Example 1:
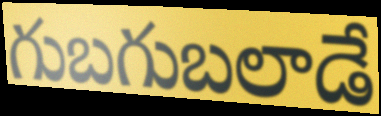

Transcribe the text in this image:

గుబగుబలాడే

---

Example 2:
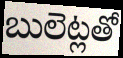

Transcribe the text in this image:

బులెట్లతో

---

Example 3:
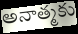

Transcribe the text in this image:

అనాత్మకు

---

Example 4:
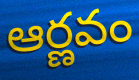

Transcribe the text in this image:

ఆర్ణవం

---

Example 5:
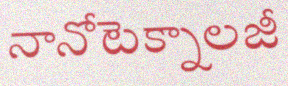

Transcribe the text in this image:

నానోటెక్నాలజీ